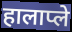
हालाप्ले